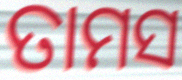
ତାମସ